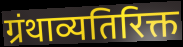
ग्रंथाव्यतिरिक्त